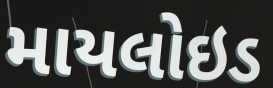
માયલોઇડ